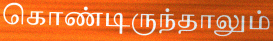
கொண்டிருந்தாலும்